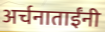
अर्चनाताईंनी